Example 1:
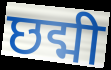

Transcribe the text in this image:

छद्मी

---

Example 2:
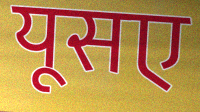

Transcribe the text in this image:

यूसए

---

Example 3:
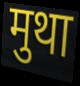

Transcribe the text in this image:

मुथा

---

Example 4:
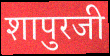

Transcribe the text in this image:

शापुरजी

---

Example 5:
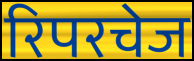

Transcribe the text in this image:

रिपरचेज